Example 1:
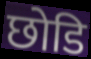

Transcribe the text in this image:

छोडि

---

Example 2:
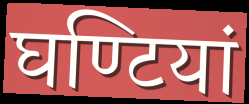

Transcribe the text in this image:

घण्टियां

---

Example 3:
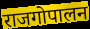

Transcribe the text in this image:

राजगोपालन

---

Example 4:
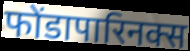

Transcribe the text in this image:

फोंडापारिनक्स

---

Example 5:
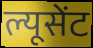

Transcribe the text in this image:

ल्यूसेंट